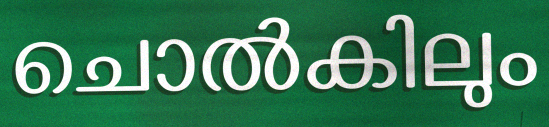
ചൊൽകിലും